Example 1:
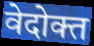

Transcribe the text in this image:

वेदोक्त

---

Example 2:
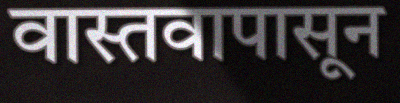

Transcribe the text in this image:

वास्तवापासून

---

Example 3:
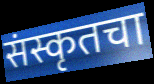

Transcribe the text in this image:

संस्कृतचा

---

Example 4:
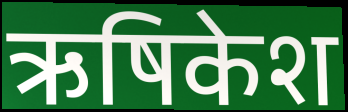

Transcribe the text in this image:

ऋषिकेश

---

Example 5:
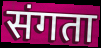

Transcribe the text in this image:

संगता